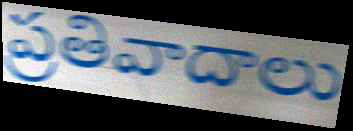
ప్రతివాదాలు